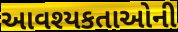
આવશ્યકતાઓની